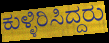
ಕುಳ್ಳಿರಿಸಿದ್ದರು